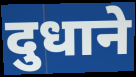
दुधाने